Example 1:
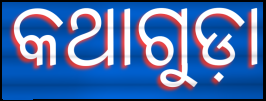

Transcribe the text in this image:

କଥାଗୁଡ଼ା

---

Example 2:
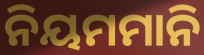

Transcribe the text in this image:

ନିୟମମାନି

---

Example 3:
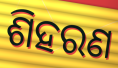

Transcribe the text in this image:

ଶିହରଣ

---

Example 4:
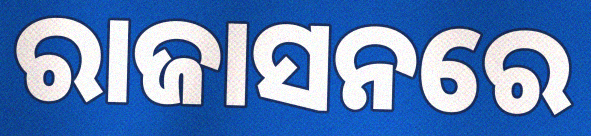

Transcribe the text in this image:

ରାଜାସନରେ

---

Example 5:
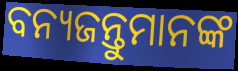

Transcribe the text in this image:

ବନ୍ୟଜନ୍ତୁମାନଙ୍କ